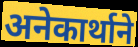
अनेकार्थाने